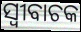
ସ୍ବୀବାଚକ